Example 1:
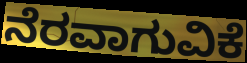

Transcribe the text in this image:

ನೆರವಾಗುವಿಕೆ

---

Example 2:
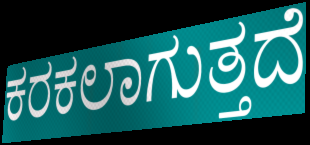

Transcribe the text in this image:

ಕರಕಲಾಗುತ್ತದೆ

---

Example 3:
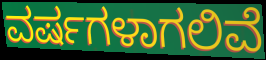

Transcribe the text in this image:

ವರ್ಷಗಳಾಗಲಿವೆ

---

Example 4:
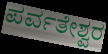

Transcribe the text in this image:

ಪರ್ವತೇಶ್ವರ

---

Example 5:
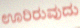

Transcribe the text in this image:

ಊರಿರುವುದು